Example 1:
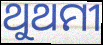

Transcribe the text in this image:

ଥୁଥମୀ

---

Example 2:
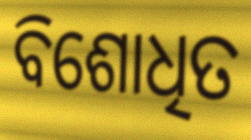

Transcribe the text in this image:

ବିଶୋଧିତ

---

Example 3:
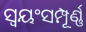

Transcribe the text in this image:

ସ୍ୱୟଂସମ୍ପୂର୍ଣ୍ଣ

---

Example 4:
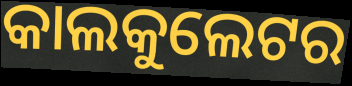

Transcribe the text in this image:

କାଲକୁଲେଟର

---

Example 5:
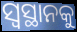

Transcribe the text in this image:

ସ୍ୱସ୍ଥାନକୁ